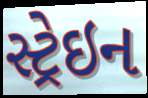
સ્ટ્રેઇન